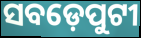
ସବଡ଼େପୁଟୀ